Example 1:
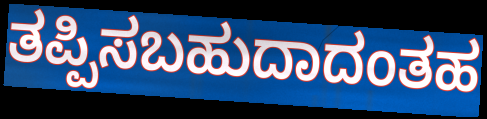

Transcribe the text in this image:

ತಪ್ಪಿಸಬಹುದಾದಂತಹ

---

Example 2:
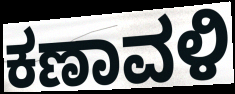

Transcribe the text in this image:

ಕಣಾವಳಿ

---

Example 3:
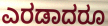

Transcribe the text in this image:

ಎರಡಾದರೂ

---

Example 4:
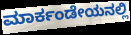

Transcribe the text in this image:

ಮಾರ್ಕಂಡೇಯನಲ್ಲಿ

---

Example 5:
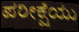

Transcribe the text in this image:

ಪರೀಕ್ಷೆಯು